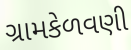
ગ્રામકેળવણી